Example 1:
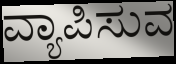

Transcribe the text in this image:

ವ್ಯಾಪಿಸುವ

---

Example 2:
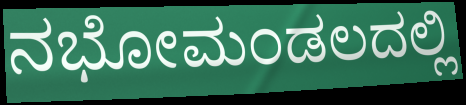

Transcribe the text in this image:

ನಭೋಮಂಡಲದಲ್ಲಿ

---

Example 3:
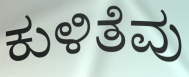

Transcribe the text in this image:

ಕುಳಿತೆವು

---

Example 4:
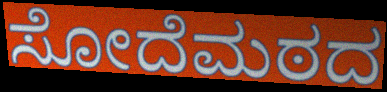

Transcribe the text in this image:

ಸೋದೆಮಠದ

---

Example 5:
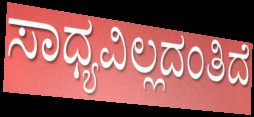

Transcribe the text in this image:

ಸಾಧ್ಯವಿಲ್ಲದಂತಿದೆ